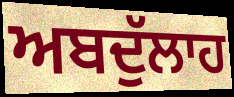
ਅਬਦੁੱਲਾਹ